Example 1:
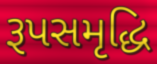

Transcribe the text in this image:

રૂપસમૃદ્ધિ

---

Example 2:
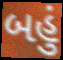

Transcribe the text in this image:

બહું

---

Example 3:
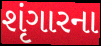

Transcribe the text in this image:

શૃંગારના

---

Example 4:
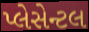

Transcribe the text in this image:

પ્લેસેન્ટલ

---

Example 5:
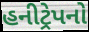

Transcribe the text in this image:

હનીટ્રેપનો